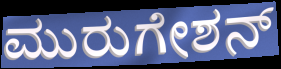
ಮುರುಗೇಶನ್